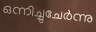
ഒന്നിച്ചുചേർന്നു